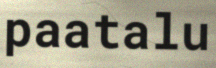
paatalu